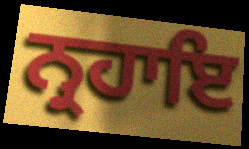
ਨ੍ਰਹਾਇ